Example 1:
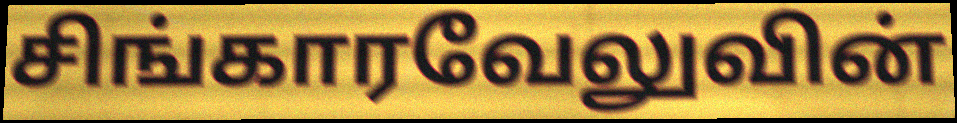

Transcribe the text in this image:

சிங்காரவேலுவின்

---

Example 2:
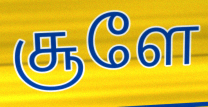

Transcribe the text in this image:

சூளே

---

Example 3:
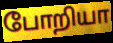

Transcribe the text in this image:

போறியா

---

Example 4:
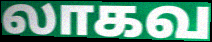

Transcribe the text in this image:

லாகவ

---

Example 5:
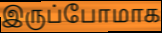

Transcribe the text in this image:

இருப்போமாக